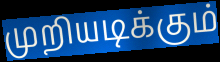
முறியடிக்கும்